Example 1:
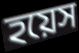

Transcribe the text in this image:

হয়েস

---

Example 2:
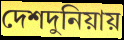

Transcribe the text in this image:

দেশদুনিয়ায়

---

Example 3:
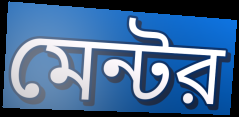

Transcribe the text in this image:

মেন্টর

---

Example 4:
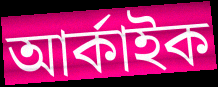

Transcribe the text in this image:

আর্কাইক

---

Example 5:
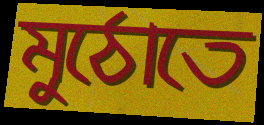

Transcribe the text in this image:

মুঠোতে